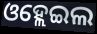
ଓହ୍ଲେଇଲ